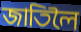
জাতিলৈ